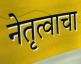
नेतृत्वाचा